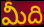
మీది